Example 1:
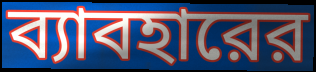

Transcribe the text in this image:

ব্যাবহারের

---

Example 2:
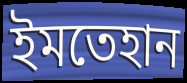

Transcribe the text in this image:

ইমতেহান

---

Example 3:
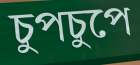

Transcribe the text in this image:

চুপচুপে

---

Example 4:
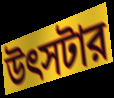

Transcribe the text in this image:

উৎসটার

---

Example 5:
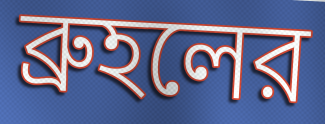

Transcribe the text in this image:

ব্রুহলের